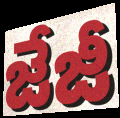
జేజీ